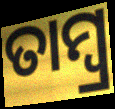
ତାମ୍ବ୍ର